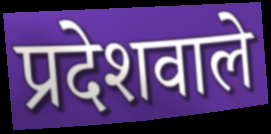
प्रदेशवाले